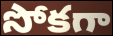
సోకగా